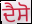
ਦੈਸੋ